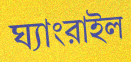
ঘ্যাংরাইল